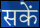
सकें